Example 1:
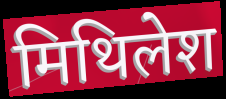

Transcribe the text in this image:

मिथिलेश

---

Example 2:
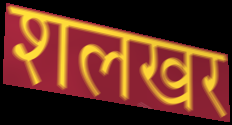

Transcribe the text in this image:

शलखर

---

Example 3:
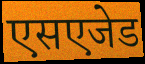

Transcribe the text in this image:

एसएजेड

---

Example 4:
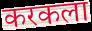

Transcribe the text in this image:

करकला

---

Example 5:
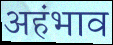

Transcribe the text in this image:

अहंभाव